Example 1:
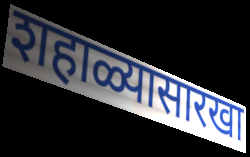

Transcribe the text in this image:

शहाळ्यासारखा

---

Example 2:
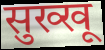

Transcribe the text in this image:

सुख्खू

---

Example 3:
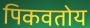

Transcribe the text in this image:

पिकवतोय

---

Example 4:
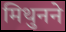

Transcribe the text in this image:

मिथुनने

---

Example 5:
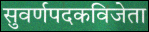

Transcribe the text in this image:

सुवर्णपदकविजेता